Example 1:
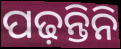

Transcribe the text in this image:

ପଢ଼ନ୍ତିନି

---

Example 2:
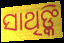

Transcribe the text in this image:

ସାଥିଙ୍କି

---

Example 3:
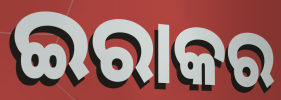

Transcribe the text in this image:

ଇରାକର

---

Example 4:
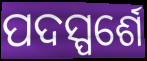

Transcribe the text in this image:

ପଦସ୍ପର୍ଶେ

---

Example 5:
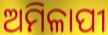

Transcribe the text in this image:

ଅମିଳାପୀ